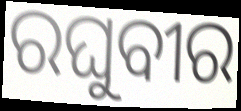
ରଘୁବୀର